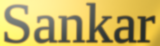
Sankar